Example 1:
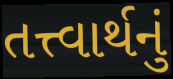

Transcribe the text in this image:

તત્ત્વાર્થનું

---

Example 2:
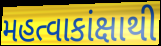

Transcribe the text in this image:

મહત્વાકાંક્ષાથી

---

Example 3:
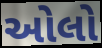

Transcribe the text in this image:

ઓલો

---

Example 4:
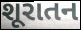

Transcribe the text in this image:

શૂરાતન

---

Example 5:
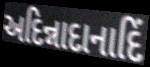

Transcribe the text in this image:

અદિન્નાદાનાદિં